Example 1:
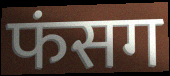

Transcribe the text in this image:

फंसग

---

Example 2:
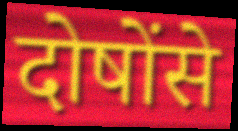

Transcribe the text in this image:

दोषोंसे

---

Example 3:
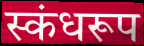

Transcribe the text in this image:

स्कंधरूप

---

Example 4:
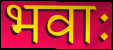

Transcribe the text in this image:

भवाः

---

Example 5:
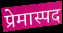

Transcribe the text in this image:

प्रेमास्पद